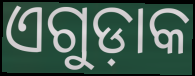
ଏଗୁଡ଼ାକ